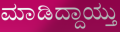
ಮಾಡಿದ್ದಾಯ್ತು